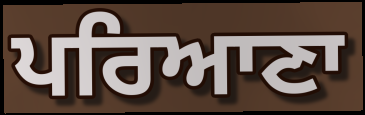
ਪਰਿਆਣਾ